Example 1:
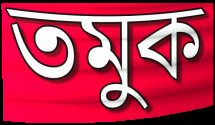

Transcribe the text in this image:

তমুক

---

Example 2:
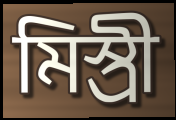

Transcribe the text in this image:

মিস্ত্ৰী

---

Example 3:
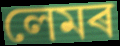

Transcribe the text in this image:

লেমৰ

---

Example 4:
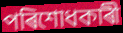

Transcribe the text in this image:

পৰিশোধকাৰী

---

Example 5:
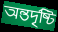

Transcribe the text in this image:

অন্তৰ্দৃষ্টি